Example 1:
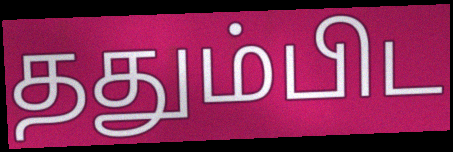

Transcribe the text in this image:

ததும்பிட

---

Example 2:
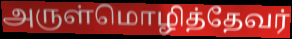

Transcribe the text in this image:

அருள்மொழித்தேவர்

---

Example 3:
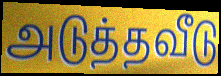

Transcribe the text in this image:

அடுத்தவீடு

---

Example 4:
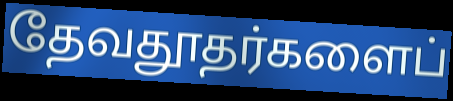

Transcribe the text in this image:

தேவதூதர்களைப்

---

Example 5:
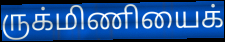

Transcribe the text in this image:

ருக்மிணியைக்